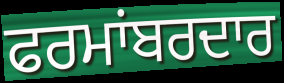
ਫਰਮਾਂਬਰਦਾਰ